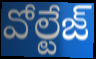
వోల్టేజ్